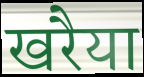
खरैया